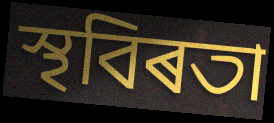
স্থবিৰতা